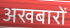
अखबारों